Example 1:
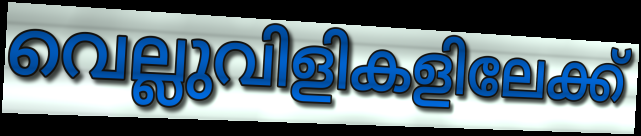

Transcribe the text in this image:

വെല്ലുവിളികളിലേക്ക്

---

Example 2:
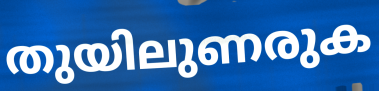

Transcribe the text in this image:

തുയിലുണരുക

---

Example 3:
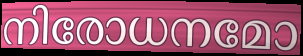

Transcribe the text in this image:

നിരോധനമോ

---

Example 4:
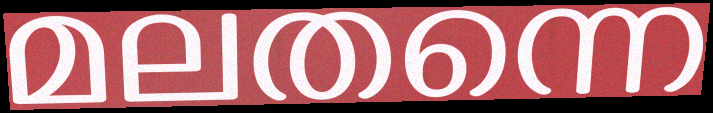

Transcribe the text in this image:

മലതന്നെ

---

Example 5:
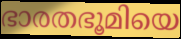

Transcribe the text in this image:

ഭാരതഭൂമിയെ